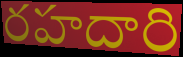
రహదారి